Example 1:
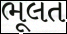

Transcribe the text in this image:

ભૂલત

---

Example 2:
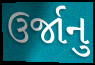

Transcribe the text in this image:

ઉર્જાનુ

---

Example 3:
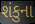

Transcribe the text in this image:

શંકુના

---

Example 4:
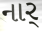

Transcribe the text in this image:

નાર્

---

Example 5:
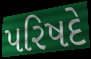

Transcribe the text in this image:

પરિષદે